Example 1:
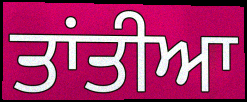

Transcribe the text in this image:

ਤਾਂਤੀਆ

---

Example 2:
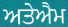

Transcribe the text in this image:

ਅਤੇਐਮ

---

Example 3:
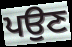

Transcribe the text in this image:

ਪਉਣ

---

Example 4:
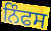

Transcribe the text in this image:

ਨਿੰਫਸ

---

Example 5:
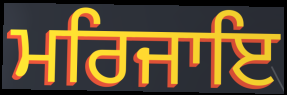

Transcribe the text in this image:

ਮਰਿਜਾਇ